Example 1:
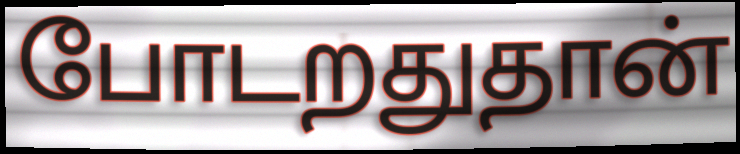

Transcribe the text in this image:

போடறதுதான்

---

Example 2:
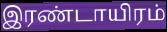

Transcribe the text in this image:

இரண்டாயிரம்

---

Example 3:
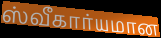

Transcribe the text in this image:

ஸ்வீகார்யமான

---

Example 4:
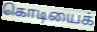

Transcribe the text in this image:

கொடியைக்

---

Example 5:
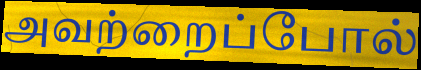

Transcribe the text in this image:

அவற்றைப்போல்